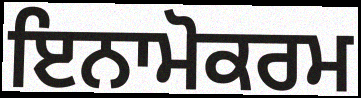
ਇਨਾਮੋਕਰਮ